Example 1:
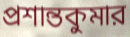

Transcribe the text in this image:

প্রশান্তকুমার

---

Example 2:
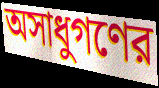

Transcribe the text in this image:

অসাধুগণের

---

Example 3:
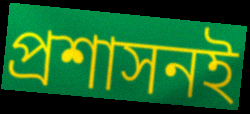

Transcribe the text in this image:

প্রশাসনই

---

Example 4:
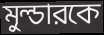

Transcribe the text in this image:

মুল্ডারকে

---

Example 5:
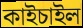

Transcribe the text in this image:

কাইচাইল